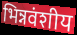
भिन्नवंशीय